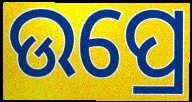
ଉପ୍ରେ